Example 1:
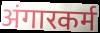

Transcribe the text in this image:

अंगारकर्म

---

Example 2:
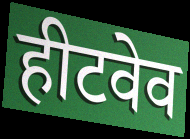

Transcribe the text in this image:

हीटवेव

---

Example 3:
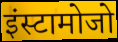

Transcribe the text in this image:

इंस्टामोजो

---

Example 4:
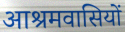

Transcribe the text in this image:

आश्रमवासियों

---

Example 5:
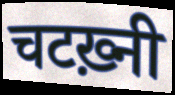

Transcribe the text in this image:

चटख़्नी